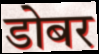
डोबर